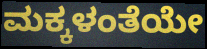
ಮಕ್ಕಳಂತೆಯೇ